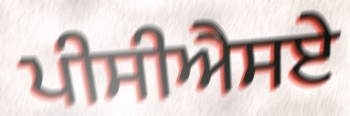
ਪੀਸੀਐਸਏ